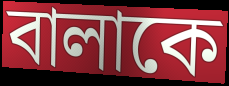
বালাকে